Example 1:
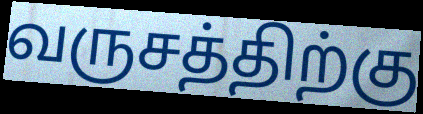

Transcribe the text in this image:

வருசத்திற்கு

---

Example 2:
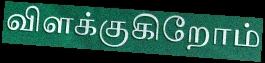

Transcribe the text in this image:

விளக்குகிறோம்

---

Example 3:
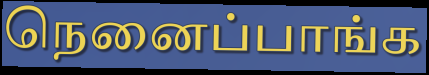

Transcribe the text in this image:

நெனைப்பாங்க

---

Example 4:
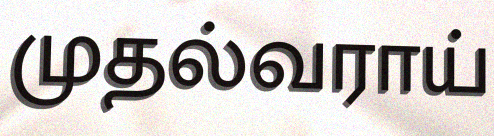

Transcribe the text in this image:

முதல்வராய்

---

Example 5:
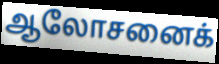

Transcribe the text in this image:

ஆலோசனைக்